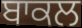
ਬਾਕਲ